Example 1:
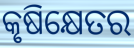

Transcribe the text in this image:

କୃଷିକ୍ଷେତର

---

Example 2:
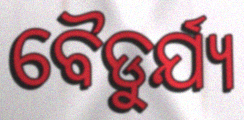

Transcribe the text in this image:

ବୈଡୁର୍ଯ୍ୟ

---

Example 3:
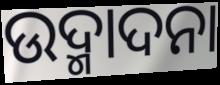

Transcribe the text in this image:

ଉଦ୍ମାଦନା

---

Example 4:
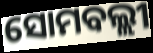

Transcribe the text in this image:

ସୋମବଲ୍ଲୀ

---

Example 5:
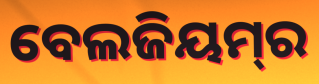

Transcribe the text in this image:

ବେଲଜିୟମ୍‌ର